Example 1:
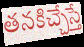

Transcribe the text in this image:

తనకిచ్చేస్తే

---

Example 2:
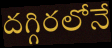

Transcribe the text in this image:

దగ్గిరలోనే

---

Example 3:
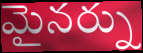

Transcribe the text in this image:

మైనర్ను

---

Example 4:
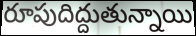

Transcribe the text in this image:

రూపుదిద్దుతున్నాయి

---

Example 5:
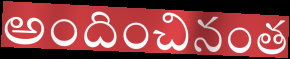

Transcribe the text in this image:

అందించినంత